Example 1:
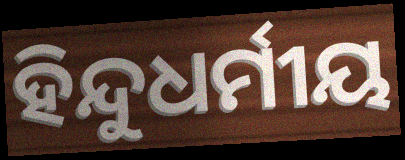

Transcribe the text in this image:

ହିନ୍ଦୁଧର୍ମୀୟ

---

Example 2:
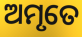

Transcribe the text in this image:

ଅମୃତେ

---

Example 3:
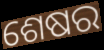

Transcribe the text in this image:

ଶେଷର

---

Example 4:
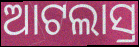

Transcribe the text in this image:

ଆଟଲାସ୍ର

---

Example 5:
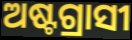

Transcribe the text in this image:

ଅଷ୍ଟଗ୍ରାସୀ